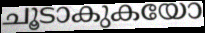
ചൂടാകുകയോ